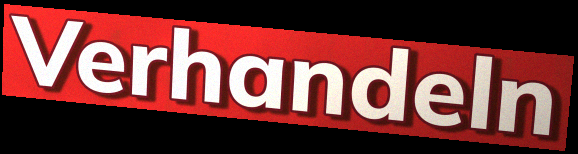
Verhandeln